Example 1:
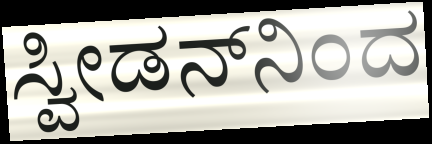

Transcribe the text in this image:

ಸ್ವೀಡನ್‌ನಿಂದ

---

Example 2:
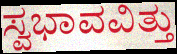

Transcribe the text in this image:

ಸ್ವಭಾವವಿತ್ತು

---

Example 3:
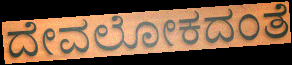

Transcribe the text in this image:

ದೇವಲೋಕದಂತೆ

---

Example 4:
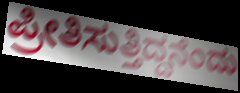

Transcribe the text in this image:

ಪ್ರೀತಿಸುತ್ತಿದ್ದನೆಂದು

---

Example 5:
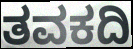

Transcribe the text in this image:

ತವಕದಿ